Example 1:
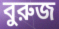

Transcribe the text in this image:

বুরুজ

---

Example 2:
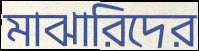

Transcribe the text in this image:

মাঝারিদের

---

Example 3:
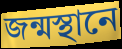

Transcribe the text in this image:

জন্মস্থানে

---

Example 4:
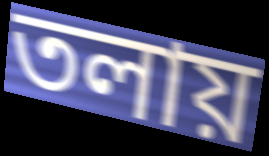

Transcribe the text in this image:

তলায়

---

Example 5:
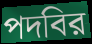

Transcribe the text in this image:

পদবির